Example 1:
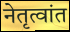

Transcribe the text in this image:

नेतृत्वांत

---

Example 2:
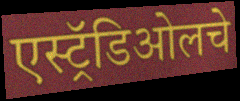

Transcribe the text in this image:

एस्ट्रॅडिओलचे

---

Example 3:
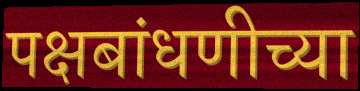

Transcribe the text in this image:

पक्षबांधणीच्या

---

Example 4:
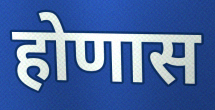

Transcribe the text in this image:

होणास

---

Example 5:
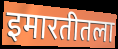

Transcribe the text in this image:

इमारतीतला